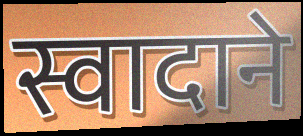
स्वादाने